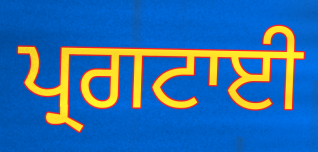
ਪ੍ਰ੍ਰਗਟਾਈ